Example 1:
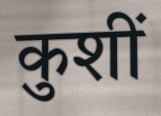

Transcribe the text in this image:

कुशीं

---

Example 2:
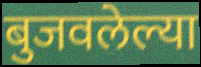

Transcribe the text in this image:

बुजवलेल्या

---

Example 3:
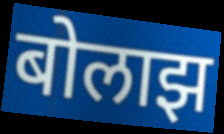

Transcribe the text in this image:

बोलाझ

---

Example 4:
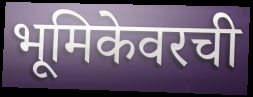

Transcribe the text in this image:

भूमिकेवरची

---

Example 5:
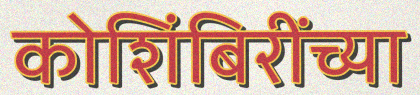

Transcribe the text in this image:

कोशिंबिरींच्या